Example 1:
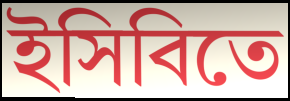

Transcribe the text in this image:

ইসিবিতে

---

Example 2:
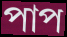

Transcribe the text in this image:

পাপ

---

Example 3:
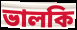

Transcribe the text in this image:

ভালকি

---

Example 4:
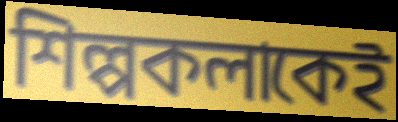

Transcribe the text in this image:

শিল্পকলাকেই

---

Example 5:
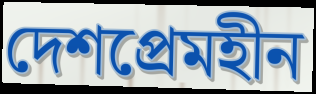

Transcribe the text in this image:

দেশপ্রেমহীন